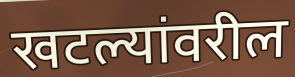
खटल्यांवरील